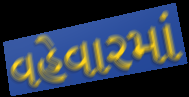
વહેવારમાં